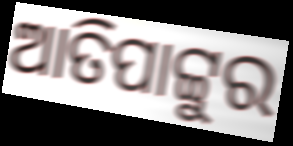
ଆତିପାଟ୍ଟୁର